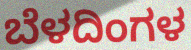
ಬೆಳದಿಂಗಳ